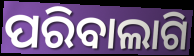
ପରିବାଲାଗି